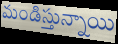
మండిస్తున్నాయి